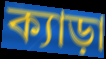
ক্যাড়া